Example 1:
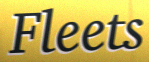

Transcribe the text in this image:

Fleets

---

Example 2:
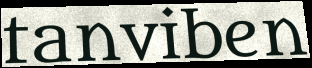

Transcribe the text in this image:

tanviben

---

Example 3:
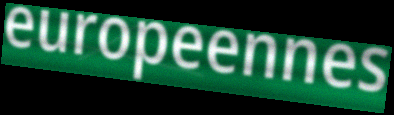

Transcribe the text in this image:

europeennes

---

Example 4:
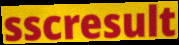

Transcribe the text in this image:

sscresult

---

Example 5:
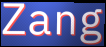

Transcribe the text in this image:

Zang